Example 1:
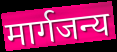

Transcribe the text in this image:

मार्गजन्य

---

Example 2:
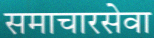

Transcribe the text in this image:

समाचारसेवा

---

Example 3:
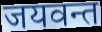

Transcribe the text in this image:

जयवन्त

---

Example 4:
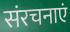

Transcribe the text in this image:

संरचनाएं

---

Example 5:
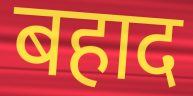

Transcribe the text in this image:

बहाद